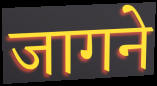
जागने